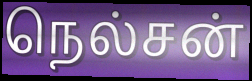
நெல்சன்